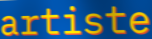
artiste